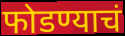
फोडण्याचं